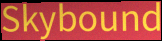
Skybound